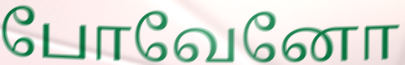
போவேனோ